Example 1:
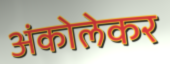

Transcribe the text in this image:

अंकोलेकर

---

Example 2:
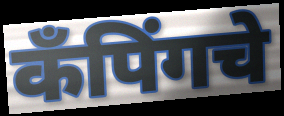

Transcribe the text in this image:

कँपिंगचे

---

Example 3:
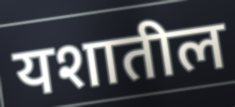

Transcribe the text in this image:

यशातील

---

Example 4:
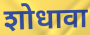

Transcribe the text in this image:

शोधावा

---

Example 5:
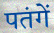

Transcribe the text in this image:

पतंगें